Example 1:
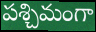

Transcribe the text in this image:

పశ్చిమంగా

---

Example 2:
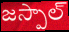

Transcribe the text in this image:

జస్పాల్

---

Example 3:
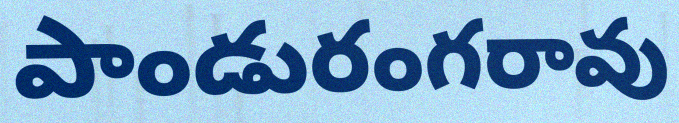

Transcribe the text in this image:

పాండురంగరావు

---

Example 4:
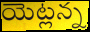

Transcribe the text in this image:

యెట్లన్న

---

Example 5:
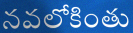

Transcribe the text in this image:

నవలోకింతు